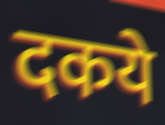
दकये